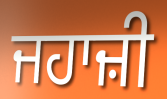
ਜਹਾਜ਼ੀ